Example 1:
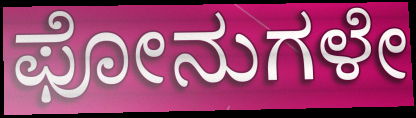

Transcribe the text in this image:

ಫೋನುಗಳೇ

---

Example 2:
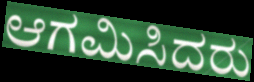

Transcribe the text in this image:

ಆಗಮಿಸಿದರು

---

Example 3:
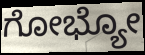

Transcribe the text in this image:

ಗೋಭ್ಯೋ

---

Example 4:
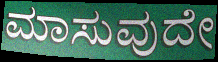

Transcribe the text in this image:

ಮಾಸುವುದೇ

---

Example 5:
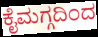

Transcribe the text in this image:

ಕೈಮಗ್ಗದಿಂದ